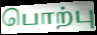
பொற்பு